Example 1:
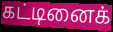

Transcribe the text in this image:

கட்டினைக்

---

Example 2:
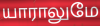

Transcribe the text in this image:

யாராலுமே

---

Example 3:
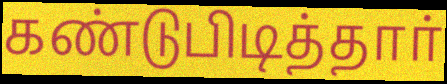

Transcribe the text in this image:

கண்டுபிடித்தார்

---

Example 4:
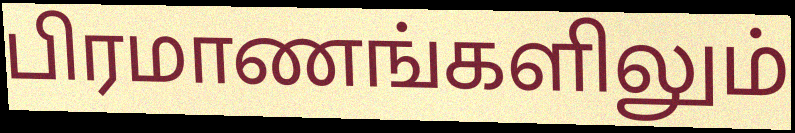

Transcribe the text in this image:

பிரமாணங்களிலும்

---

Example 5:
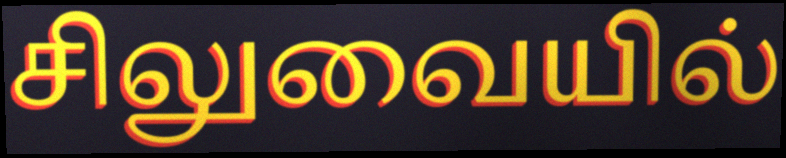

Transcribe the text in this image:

சிலுவையில்